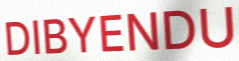
DIBYENDU